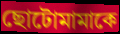
ছোটোমামাকে